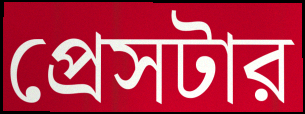
প্রেসটার